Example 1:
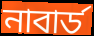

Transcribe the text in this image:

নাবার্ড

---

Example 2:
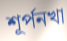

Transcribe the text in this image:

শূর্পনখা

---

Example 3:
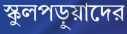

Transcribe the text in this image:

স্কুলপড়ুয়াদের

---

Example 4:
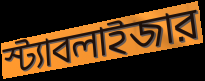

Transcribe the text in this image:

স্ট্যাবলাইজার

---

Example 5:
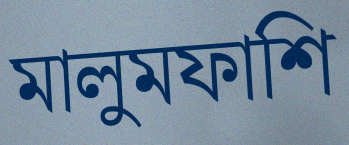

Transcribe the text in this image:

মালুমফাশি